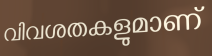
വിവശതകളുമാണ്